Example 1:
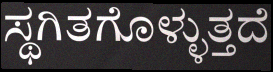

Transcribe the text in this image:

ಸ್ಥಗಿತಗೊಳ್ಳುತ್ತದೆ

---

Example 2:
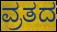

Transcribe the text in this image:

ವ್ರತದ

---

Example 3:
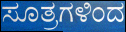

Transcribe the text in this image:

ಸೂತ್ರಗಳಿಂದ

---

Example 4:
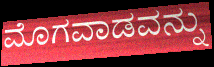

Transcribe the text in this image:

ಮೊಗವಾಡವನ್ನು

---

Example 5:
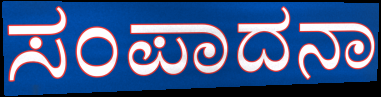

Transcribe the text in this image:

ಸಂಪಾದನಾ